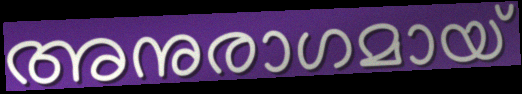
അനുരാഗമായ്